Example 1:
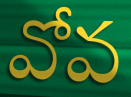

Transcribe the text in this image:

వోవ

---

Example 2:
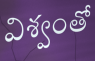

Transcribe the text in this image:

విశ్వంతో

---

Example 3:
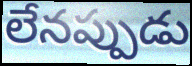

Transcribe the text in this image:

లేనప్పుడు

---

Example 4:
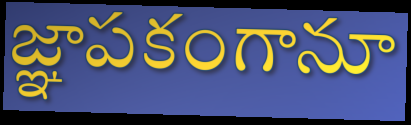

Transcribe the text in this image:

జ్ఞాపకంగానూ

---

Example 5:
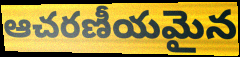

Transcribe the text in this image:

ఆచరణీయమైన